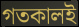
গতকালই